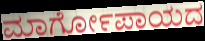
ಮಾರ್ಗೋಪಾಯದ